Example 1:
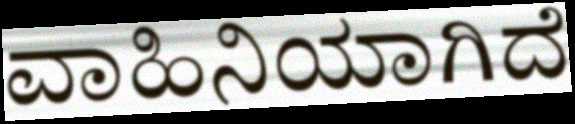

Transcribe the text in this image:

ವಾಹಿನಿಯಾಗಿದೆ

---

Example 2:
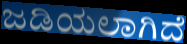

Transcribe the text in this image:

ಜಡಿಯಲಾಗಿದೆ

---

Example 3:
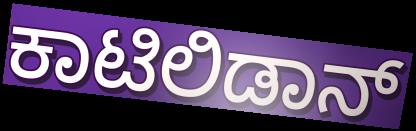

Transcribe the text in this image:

ಕಾಟಿಲಿಡಾನ್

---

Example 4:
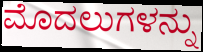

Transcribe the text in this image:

ಮೊದಲುಗಳನ್ನು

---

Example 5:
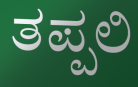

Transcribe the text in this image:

ತಪ್ಪಲಿ